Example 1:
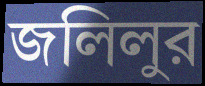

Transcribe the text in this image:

জলিলুর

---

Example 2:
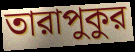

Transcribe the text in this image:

তারাপুকুর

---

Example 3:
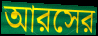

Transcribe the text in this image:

আরসের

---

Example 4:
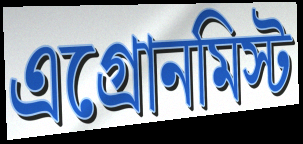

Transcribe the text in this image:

এগ্রোনমিস্ট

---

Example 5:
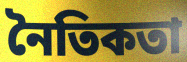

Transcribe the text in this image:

নৈতিকতা